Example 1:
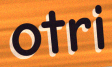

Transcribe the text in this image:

otri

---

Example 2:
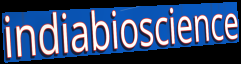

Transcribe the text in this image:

indiabioscience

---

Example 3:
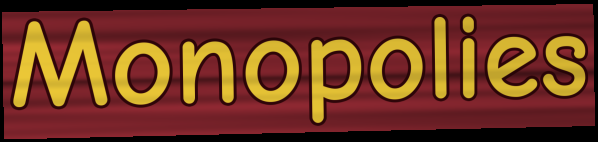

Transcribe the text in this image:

Monopolies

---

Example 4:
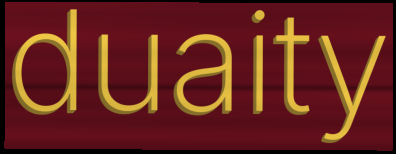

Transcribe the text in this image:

duaity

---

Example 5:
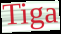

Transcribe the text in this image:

Tiga